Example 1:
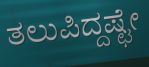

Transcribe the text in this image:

ತಲುಪಿದ್ದಷ್ಟೇ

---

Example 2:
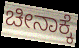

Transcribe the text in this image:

ಚೀನಾಕ್ಕೆ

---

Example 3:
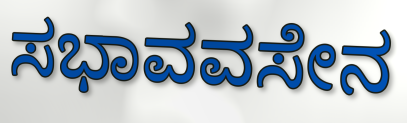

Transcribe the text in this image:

ಸಭಾವವಸೇನ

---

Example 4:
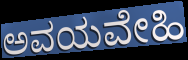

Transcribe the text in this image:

ಅವಯವೇಹಿ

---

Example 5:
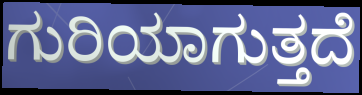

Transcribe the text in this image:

ಗುರಿಯಾಗುತ್ತದೆ